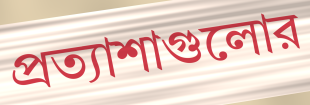
প্রত্যাশাগুলোর